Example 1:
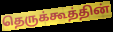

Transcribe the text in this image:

தெருக்கூத்தின்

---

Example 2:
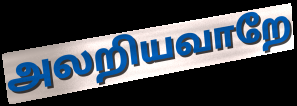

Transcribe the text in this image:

அலறியவாறே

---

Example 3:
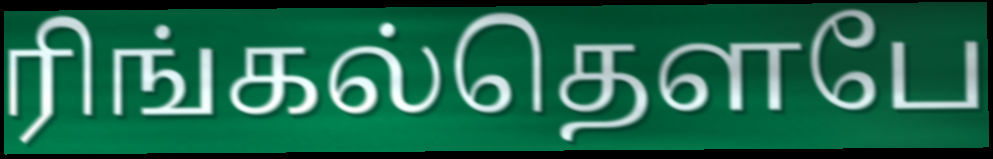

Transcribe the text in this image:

ரிங்கல்தௌபே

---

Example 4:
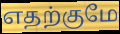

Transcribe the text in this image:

எதற்குமே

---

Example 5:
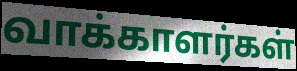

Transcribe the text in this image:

வாக்காளர்கள்